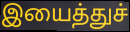
இயைத்துச்